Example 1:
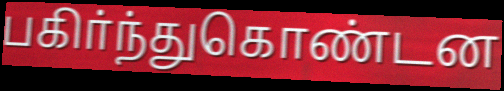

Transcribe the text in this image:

பகிர்ந்துகொண்டன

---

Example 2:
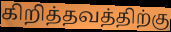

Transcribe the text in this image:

கிறித்தவத்திற்கு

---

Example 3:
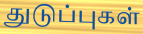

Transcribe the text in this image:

துடுப்புகள்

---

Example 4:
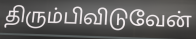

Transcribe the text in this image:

திரும்பிவிடுவேன்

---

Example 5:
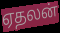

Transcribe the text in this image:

ஏதலன்